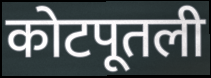
कोटपूतली